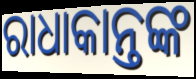
ରାଧାକାନ୍ତଙ୍କ